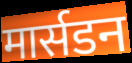
मार्सडन